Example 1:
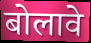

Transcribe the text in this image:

बोलावे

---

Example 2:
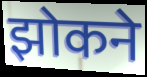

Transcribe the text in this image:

झोकने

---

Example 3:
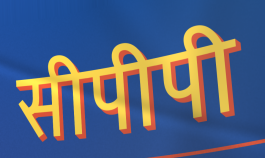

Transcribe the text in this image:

सीपीपी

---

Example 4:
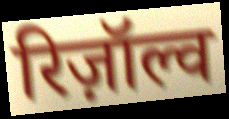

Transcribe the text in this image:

रिज़ॉल्व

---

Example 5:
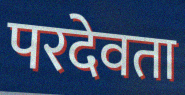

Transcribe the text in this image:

परदेवता